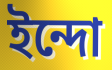
ইন্দো